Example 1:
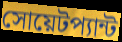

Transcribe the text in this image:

সোয়েটপ্যান্ট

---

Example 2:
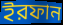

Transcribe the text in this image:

ইরফান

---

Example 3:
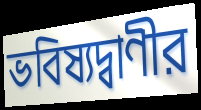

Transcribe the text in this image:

ভবিষ্যদ্বাণীর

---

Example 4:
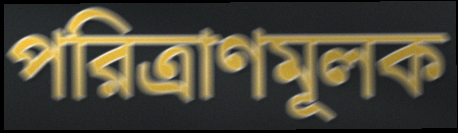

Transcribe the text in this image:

পরিত্রাণমূলক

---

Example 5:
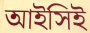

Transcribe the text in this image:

আইসিই